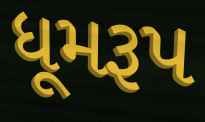
ધૂમરૂપ